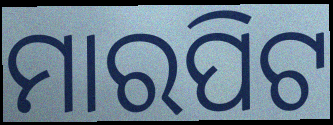
ମାରପିଟ